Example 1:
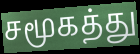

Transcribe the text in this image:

சமூகத்து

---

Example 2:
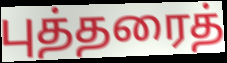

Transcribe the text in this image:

புத்தரைத்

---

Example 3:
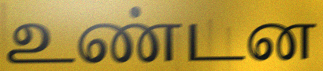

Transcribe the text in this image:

உண்டன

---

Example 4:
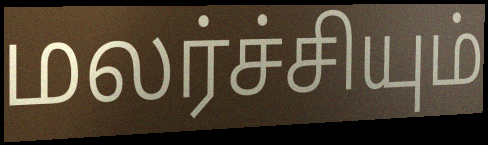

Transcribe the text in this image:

மலர்ச்சியும்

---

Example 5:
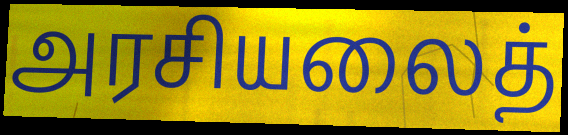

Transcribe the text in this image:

அரசியலைத்